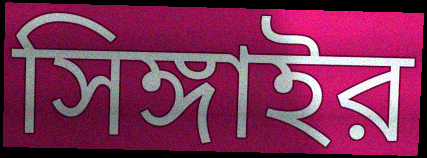
সিঙ্গাইর